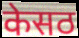
केसठ